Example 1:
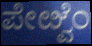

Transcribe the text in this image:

ಪೇೞ್ವೆಂ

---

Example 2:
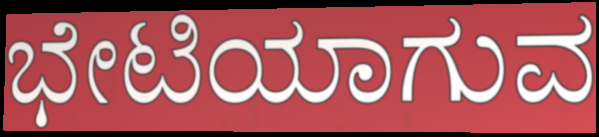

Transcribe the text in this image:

ಭೇಟಿಯಾಗುವ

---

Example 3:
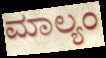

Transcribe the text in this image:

ಮಾಲ್ಯಂ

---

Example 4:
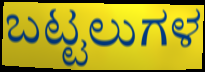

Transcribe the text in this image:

ಬಟ್ಟಲುಗಳ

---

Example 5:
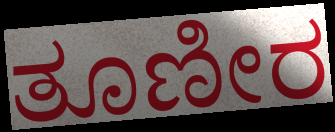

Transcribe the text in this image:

ತೂಣೀರ